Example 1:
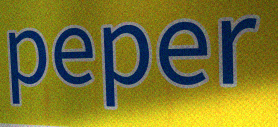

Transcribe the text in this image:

peper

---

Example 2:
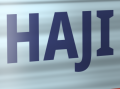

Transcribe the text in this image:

HAJI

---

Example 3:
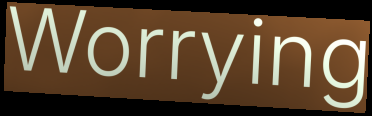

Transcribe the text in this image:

Worrying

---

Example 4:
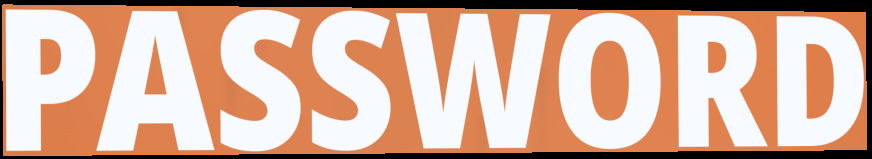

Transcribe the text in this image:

PASSWORD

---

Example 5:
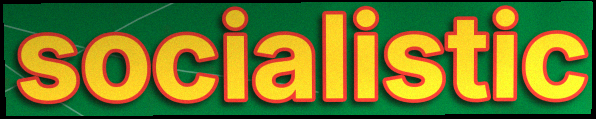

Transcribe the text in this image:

socialistic